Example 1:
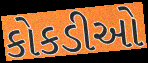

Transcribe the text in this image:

કોકડીઓ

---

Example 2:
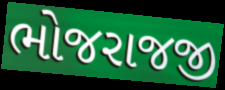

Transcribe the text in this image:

ભોજરાજજી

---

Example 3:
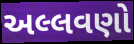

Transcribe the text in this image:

અલ્લવણો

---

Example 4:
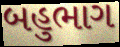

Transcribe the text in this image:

બહુભાગ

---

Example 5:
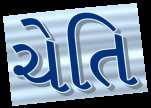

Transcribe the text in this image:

ચેતિ